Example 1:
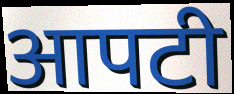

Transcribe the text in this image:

आपटी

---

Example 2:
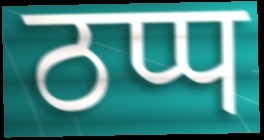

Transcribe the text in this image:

ठप्प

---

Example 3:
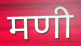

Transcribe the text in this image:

मणी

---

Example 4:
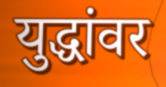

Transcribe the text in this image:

युद्धांवर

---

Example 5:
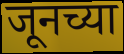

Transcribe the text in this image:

जूनच्या